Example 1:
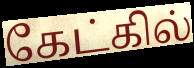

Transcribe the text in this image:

கேட்கில்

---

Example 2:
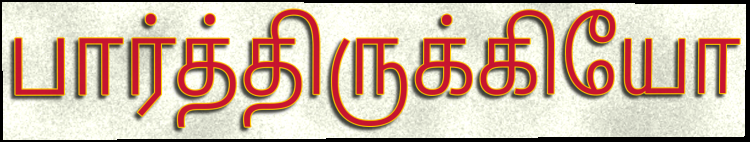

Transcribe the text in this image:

பார்த்திருக்கியோ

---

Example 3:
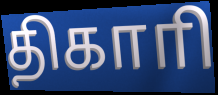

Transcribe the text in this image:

திகாரி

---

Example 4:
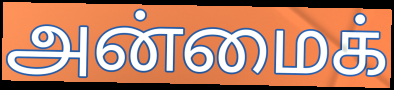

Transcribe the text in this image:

அன்மைக்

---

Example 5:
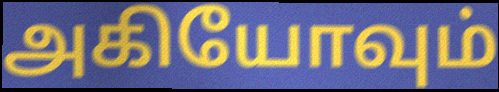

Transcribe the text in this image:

அகியோவும்